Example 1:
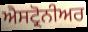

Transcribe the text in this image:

ਐਸਟ੍ਰੋਨੀਅਰ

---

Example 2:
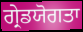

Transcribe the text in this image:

ਗ੍ਰੇਡਯੋਗਤਾ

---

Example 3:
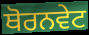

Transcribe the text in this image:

ਥੋਰਨਵੇਟ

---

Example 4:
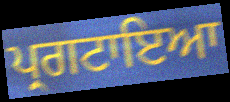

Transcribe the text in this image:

ਪ੍ਰਗਟਾਇਆ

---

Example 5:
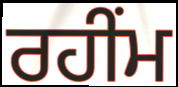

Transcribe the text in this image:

ਰਹੀਂਮ